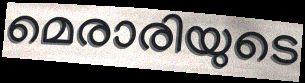
മെരാരിയുടെ